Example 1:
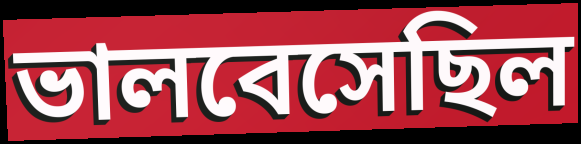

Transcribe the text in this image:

ভালবেসেছিল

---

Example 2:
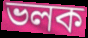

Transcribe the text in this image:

ভলক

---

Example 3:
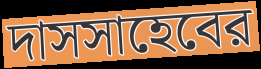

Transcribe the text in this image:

দাসসাহেবের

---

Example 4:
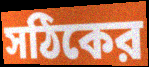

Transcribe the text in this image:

সঠিকের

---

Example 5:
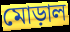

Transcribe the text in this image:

মোড়াল